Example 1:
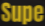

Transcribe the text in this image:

Supe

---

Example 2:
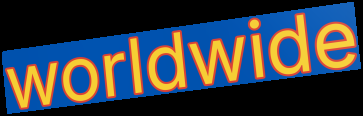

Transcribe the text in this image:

worldwide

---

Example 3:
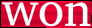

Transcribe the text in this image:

won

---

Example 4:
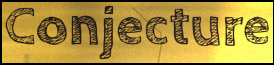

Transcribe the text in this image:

Conjecture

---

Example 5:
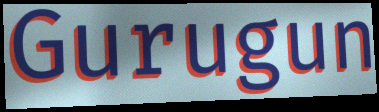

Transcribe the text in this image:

Gurugun